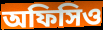
অফিসিও